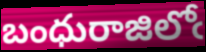
బంధురాజిలోఁ